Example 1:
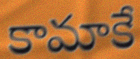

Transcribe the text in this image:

కామాకే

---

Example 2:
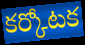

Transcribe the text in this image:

కర్కోటక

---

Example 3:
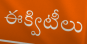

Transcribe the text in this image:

ఈక్విటీలు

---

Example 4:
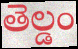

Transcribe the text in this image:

తెల్డం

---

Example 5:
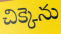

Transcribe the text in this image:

చిక్కెను